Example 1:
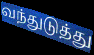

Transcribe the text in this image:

வந்துடுத்து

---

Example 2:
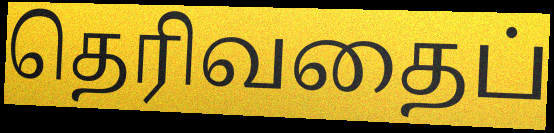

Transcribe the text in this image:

தெரிவதைப்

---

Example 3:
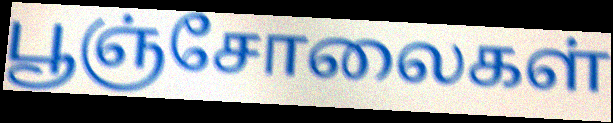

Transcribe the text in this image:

பூஞ்சோலைகள்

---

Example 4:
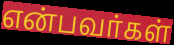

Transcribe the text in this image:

என்பவர்கள்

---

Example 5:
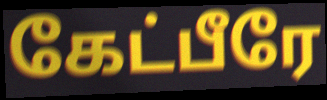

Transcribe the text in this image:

கேட்பீரே